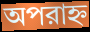
অপরাহ্ন